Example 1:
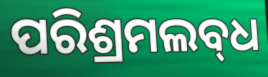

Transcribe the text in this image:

ପରିଶ୍ରମଲବ୍‍ଧ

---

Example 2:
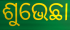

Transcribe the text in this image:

ଶୁଭେଛା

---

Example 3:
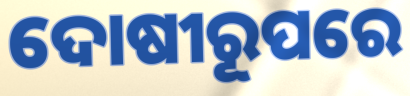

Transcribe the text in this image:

ଦୋଷୀରୂପରେ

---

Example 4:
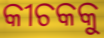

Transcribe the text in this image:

କୀଚକକୁ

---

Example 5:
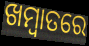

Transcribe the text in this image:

ଖମ୍ବାତରେ